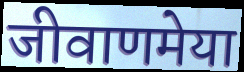
जीवाणमेया